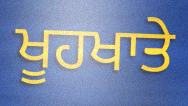
ਖੂਹਖਾਤੇ